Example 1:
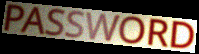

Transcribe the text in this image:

PASSWORD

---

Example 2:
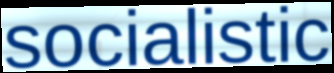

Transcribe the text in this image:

socialistic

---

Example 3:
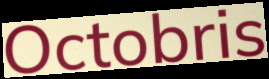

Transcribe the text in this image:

Octobris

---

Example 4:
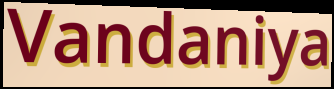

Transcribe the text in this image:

Vandaniya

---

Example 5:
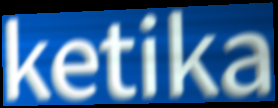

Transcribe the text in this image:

ketika